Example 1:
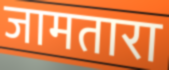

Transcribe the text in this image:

जामतारा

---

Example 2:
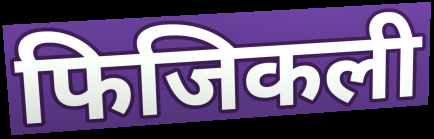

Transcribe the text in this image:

फिजिकली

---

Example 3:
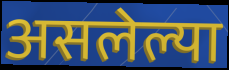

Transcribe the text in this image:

असलेल्या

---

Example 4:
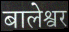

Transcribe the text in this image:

बालेश्वर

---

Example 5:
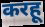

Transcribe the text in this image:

करहू